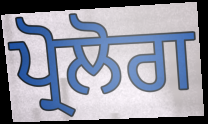
ਪ੍ਰੋਲੋਗ